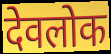
देवलोक